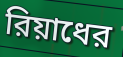
রিয়াধের